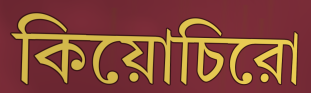
কিয়োচিরো